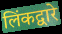
लिंकद्वारे